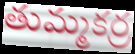
తుమ్మకర్ర